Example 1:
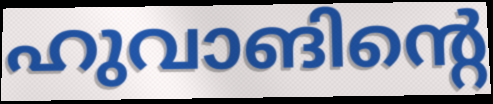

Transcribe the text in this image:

ഹുവാങിന്റെ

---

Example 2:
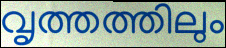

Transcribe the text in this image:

വൃത്തത്തിലും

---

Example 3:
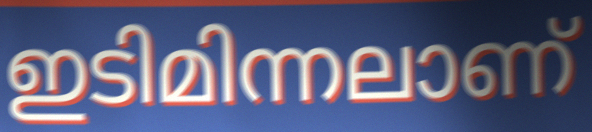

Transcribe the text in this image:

ഇടിമിന്നലാണ്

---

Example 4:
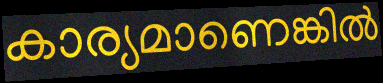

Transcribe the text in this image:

കാര്യമാണെങ്കിൽ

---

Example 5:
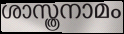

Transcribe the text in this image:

ശാസ്ത്രനാമം